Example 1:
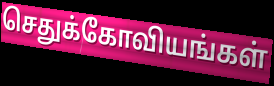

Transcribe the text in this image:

செதுக்கோவியங்கள்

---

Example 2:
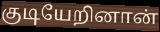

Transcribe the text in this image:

குடியேறினான்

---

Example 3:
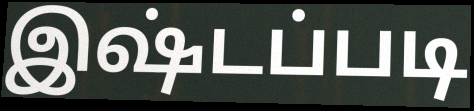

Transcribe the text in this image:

இஷ்டப்படி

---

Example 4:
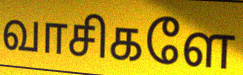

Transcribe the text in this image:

வாசிகளே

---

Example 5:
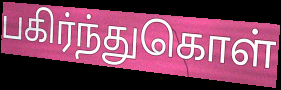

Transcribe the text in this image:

பகிர்ந்துகொள்